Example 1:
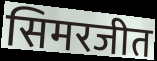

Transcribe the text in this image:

सिमरजीत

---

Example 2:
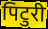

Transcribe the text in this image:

पिटुरी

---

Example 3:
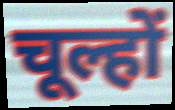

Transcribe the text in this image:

चूल्हों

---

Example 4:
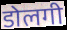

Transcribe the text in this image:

डोलगी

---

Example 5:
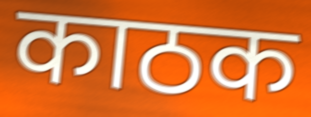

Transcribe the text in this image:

काठक